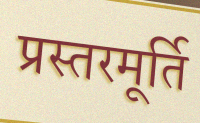
प्रस्तरमूर्ति